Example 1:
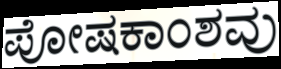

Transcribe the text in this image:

ಪೋಷಕಾಂಶವು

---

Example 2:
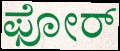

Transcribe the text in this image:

ಫೋರ್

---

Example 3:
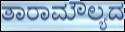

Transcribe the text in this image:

ತಾರಾಮೌಲ್ಯದ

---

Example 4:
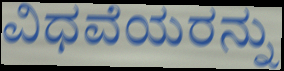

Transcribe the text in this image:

ವಿಧವೆಯರನ್ನು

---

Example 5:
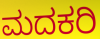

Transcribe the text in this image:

ಮದಕರಿ